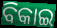
ବିକାଇ